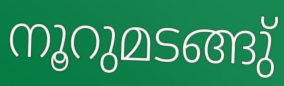
നൂറുമടങ്ങു്